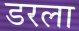
डरला